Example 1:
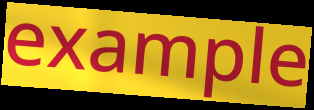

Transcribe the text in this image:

example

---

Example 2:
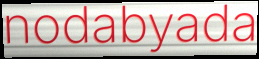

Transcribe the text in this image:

nodabyada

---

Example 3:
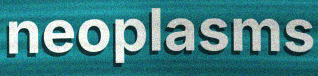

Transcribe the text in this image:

neoplasms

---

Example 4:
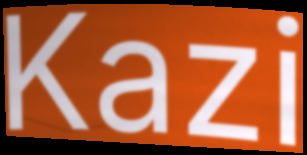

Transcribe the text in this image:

Kazi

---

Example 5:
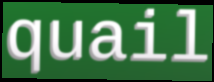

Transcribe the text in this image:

quail